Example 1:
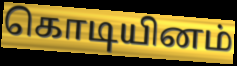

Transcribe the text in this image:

கொடியினம்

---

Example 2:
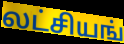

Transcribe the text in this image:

லட்சியங்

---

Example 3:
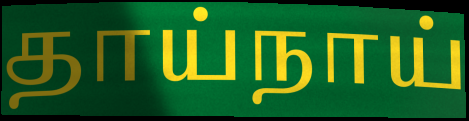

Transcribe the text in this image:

தாய்நாய்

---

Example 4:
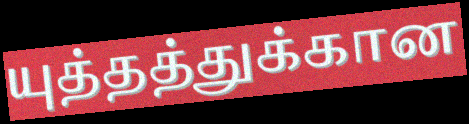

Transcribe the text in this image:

யுத்தத்துக்கான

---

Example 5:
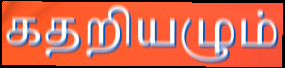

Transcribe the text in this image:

கதறியழும்